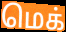
மெக்